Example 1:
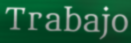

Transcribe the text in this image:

Trabajo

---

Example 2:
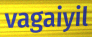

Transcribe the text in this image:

vagaiyil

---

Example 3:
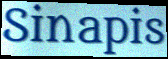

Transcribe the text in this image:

Sinapis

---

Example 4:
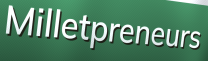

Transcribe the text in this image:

Milletpreneurs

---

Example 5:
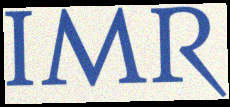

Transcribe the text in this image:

IMR